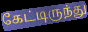
கேட்டிருந்து